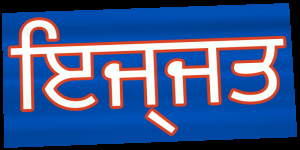
ਇਜ੍ਜਤ